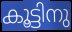
കൂട്ടിനു